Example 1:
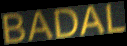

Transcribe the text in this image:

BADAL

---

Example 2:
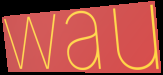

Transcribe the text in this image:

wau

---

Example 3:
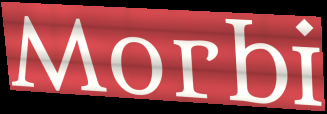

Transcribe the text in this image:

Morbi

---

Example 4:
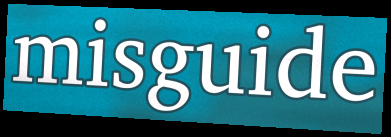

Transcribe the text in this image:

misguide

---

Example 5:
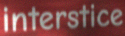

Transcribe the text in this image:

interstice